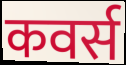
कवर्स